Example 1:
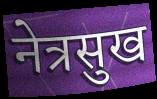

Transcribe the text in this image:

नेत्रसुख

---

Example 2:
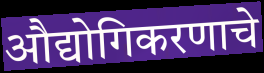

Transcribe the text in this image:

औद्योगिकरणाचे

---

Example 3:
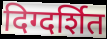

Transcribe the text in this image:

दिग्दर्शित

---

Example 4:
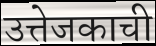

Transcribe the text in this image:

उत्तेजकाची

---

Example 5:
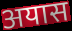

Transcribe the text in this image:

अयास